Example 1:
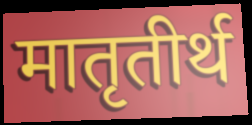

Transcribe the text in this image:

मातृतीर्थ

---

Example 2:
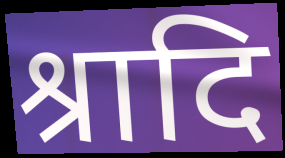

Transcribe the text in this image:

श्रादि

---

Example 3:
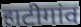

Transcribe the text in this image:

हाटीगांव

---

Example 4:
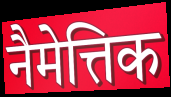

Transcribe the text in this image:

नैमेत्तिक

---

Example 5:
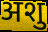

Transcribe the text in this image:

अशु